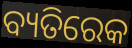
ବ୍ୟତିରେକ